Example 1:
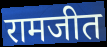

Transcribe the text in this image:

रामजीत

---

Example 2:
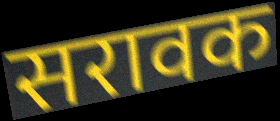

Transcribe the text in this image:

सरावक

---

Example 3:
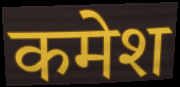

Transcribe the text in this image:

कमेश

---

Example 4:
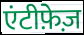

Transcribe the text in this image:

एंटीफ़ेज़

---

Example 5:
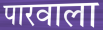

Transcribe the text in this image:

पारवाला